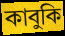
কাবুকি